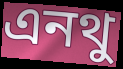
এনথু